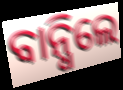
ବାନ୍ଧିଲେ